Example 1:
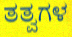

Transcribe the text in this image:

ತತ್ವಗಳ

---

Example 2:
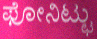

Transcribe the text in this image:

ಫೋನಿಟ್ಟು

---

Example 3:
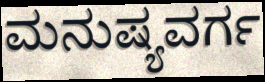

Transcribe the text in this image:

ಮನುಷ್ಯವರ್ಗ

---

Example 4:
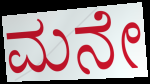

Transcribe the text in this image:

ಮನೇ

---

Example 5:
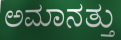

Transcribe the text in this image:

ಅಮಾನತ್ತು